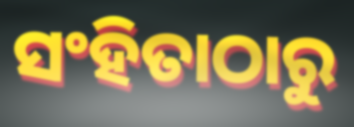
ସଂହିତାଠାରୁ